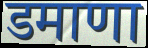
डमाणा